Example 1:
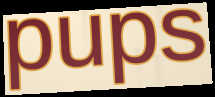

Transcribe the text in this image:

pups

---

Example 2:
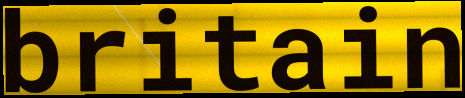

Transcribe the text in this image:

britain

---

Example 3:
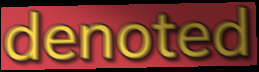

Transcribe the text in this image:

denoted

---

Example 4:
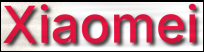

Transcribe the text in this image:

Xiaomei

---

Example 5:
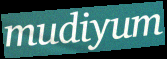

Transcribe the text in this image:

mudiyum